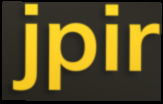
jpir